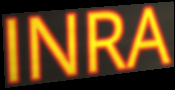
INRA